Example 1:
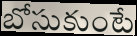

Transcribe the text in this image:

బోసుకుంటే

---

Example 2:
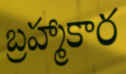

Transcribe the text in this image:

బ్రహ్మాకార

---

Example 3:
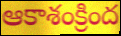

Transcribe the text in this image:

ఆకాశంక్రింద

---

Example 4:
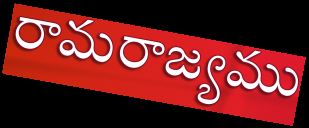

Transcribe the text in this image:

రామరాజ్యము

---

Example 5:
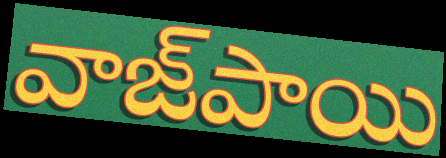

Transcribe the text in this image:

వాజ్‌పాయి